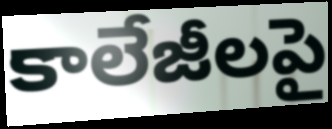
కాలేజీలపై